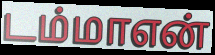
டம்மாஎன்